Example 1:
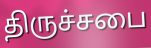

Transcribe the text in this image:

திருச்சபை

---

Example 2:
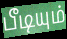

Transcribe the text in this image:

பீடியும்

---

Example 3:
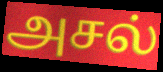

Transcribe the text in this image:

அசல்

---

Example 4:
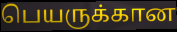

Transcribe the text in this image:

பெயருக்கான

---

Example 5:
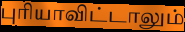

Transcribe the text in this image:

புரியாவிட்டாலும்